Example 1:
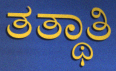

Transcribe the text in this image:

ತತ್ಥಾತಿ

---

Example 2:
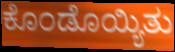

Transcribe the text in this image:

ಕೊಂಡೊಯ್ಯಿತು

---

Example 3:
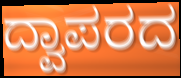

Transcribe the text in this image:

ದ್ವಾಪರದ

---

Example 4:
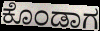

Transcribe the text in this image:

ಕೊಂಡಾಗ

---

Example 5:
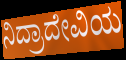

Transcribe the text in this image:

ನಿದ್ರಾದೇವಿಯ